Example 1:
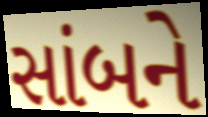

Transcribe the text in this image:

સાંબને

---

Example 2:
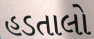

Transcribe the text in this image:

હડતાલો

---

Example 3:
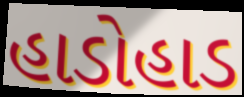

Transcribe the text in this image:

હાડોહાડ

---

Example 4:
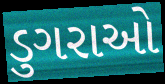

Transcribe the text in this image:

ડુગરાઓ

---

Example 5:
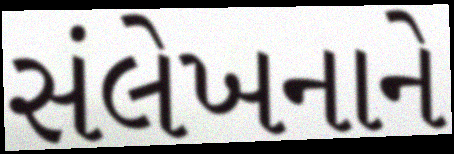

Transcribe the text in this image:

સંલેખનાને